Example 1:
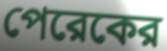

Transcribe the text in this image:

পেরেকের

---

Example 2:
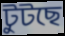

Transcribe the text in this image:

টুটছে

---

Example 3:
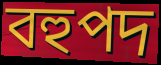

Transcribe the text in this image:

বহুপদ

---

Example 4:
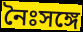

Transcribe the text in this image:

নৈঃসঙ্গে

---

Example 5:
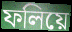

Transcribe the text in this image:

ফলিয়ে